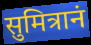
सुमित्रानं